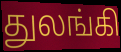
துலங்கி